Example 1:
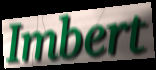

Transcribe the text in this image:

Imbert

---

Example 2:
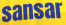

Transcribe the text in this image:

sansar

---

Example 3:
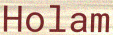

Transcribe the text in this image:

Holam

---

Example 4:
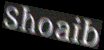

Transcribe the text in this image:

Shoaib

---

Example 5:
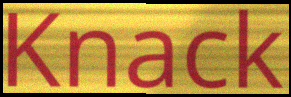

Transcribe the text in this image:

Knack